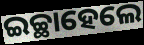
ଇଚ୍ଛାହେଲେ